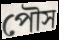
পৌস